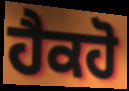
ਹੈਕਹੋ